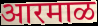
आरमाळ